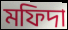
মফিদা